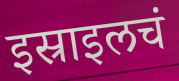
इस्राइलचं